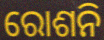
ରୋଶନି